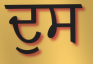
ਦੁਸ